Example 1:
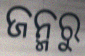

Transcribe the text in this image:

ଜନ୍ମରୁ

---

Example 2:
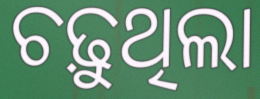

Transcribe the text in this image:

ଚଢ଼ୁଥିଲା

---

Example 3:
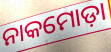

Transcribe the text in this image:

ନାକମୋଡ଼ା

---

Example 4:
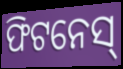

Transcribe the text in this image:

ଫିଟନେସ୍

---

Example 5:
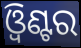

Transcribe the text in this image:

ଓ୍ଵିଣ୍ଟର